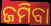
ଜମିବା